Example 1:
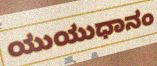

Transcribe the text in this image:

ಯುಯುಧಾನಂ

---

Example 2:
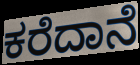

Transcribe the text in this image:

ಕರೆದಾನೆ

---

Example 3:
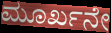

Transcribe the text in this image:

ಮೂರ್ಖನೇ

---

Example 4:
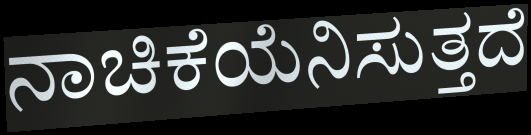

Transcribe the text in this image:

ನಾಚಿಕೆಯೆನಿಸುತ್ತದೆ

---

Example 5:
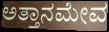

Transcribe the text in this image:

ಅತ್ತಾನಮೇವ